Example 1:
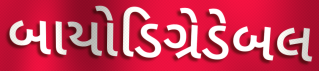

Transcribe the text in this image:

બાયોડિગ્રેડેબલ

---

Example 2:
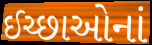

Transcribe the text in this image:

ઈચ્છાઓનાં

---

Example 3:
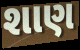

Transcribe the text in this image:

શાણ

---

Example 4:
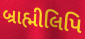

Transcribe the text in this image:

બ્રાહ્મીલિપિ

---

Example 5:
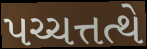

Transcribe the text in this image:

પચ્ચત્તત્થે